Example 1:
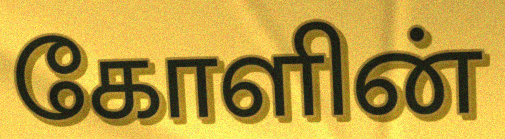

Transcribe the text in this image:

கோளின்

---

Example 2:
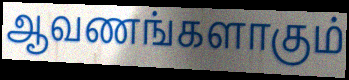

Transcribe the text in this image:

ஆவணங்களாகும்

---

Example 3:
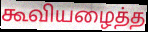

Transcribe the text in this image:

கூவியழைத்த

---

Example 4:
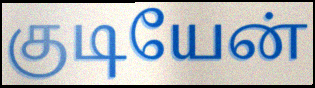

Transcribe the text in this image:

குடியேன்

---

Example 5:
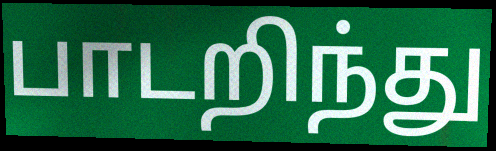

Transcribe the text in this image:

பாடறிந்து